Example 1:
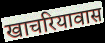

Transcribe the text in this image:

खाचरियावास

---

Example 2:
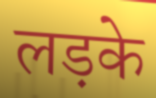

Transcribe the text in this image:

लड़के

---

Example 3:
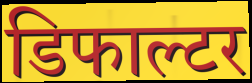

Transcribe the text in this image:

डिफाल्टर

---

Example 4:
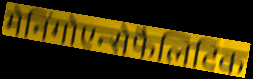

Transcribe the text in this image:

मेनिंगोएन्सेफैलिटिक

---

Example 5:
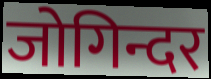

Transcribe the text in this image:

जोगिन्दर